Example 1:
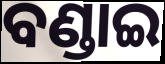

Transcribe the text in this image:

ବଣ୍ଡାଇ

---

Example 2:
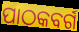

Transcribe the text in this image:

ପାଠକବର୍ଗ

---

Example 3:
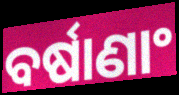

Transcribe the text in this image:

ବର୍ଷାଣାଂ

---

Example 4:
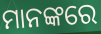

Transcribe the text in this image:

ମାନଙ୍କରେ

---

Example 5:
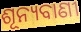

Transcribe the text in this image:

ଶୂନ୍ୟବାଣୀ